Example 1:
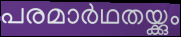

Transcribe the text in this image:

പരമാർഥതയ്ക്കും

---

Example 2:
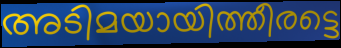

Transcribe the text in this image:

അടിമയായിത്തീരട്ടെ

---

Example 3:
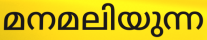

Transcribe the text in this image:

മനമലിയുന്ന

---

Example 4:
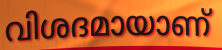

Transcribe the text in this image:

വിശദമായാണ്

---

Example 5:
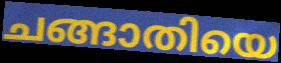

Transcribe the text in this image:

ചങ്ങാതിയെ